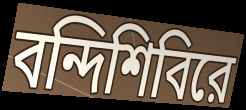
বন্দিশিবিরে